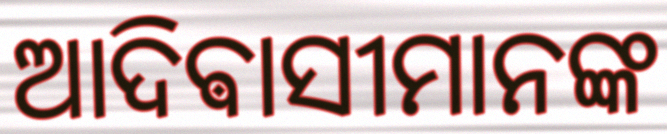
ଆଦିଵାସୀମାନଙ୍କ